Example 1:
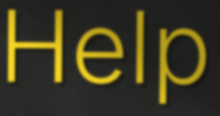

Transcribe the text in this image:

Help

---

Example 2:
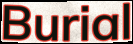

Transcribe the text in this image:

Burial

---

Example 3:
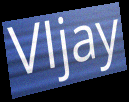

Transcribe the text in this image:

VIjay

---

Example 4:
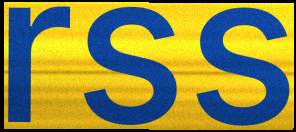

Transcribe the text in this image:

rss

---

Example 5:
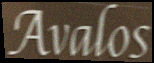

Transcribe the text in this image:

Avalos